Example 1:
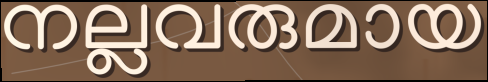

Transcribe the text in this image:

നല്ലവരുമായ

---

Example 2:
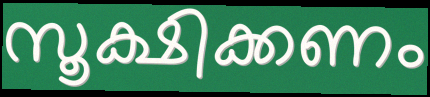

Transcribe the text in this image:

സൂക്ഷിക്കണം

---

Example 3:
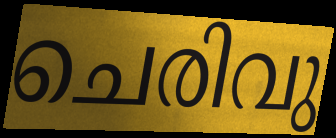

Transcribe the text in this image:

ചെരിവു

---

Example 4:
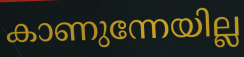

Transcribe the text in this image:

കാണുന്നേയില്ല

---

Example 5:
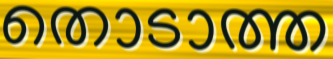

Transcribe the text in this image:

തൊടാത്ത